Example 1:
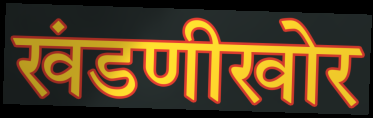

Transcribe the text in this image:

खंडणीखोर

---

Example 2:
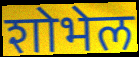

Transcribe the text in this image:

शोभेल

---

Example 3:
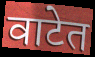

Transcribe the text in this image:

वाटेत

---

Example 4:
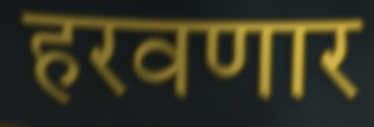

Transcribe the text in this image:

हरवणार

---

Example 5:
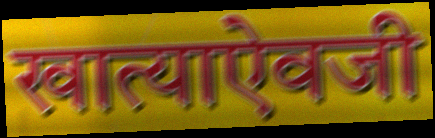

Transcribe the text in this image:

खात्याऐवजी